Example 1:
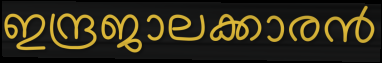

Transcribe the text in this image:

ഇന്ദ്രജാലക്കാരൻ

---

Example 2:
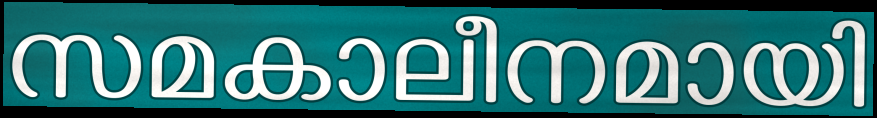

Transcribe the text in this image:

സമകാലീനമായി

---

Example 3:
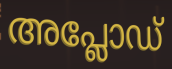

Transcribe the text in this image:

അപ്ലോഡ്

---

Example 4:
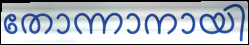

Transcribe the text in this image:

തോന്നാനായി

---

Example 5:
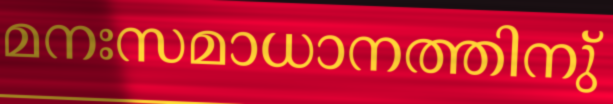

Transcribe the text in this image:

മനഃസമാധാനത്തിനു്